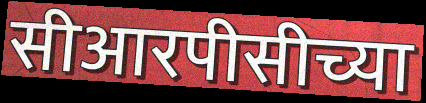
सीआरपीसीच्या